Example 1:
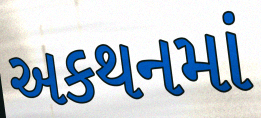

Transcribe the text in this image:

અકથનમાં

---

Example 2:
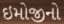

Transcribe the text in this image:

ઇમોજીનો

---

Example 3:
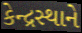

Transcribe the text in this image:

કેન્દ્રસ્થાને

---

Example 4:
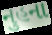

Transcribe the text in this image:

નુહના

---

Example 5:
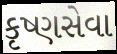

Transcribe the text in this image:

કૃષ્ણસેવા